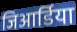
जिआर्डिया